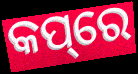
କପ୍‌ରେ